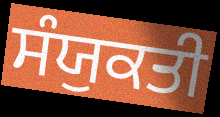
ਸੰਯੁਕਤੀ